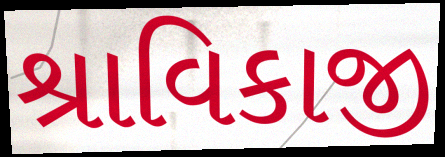
શ્રાવિકાજી